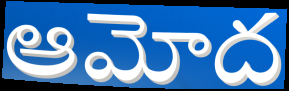
ఆమోద